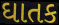
ઘાતક